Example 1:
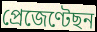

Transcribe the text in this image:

প্ৰেজেণ্টেছন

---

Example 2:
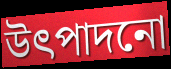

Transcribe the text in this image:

উৎপাদনো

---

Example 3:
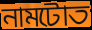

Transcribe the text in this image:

নামটোত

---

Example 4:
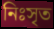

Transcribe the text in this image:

নিঃসৃত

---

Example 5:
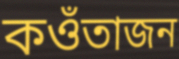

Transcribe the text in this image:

কওঁতাজন